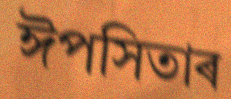
ঈপসিতাৰ